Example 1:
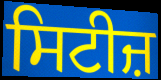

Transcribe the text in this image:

ਸਿਟੀਜ਼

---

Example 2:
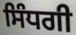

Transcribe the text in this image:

ਸਿੰਧਗੀ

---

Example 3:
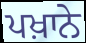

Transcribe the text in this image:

ਪਖ਼ਾਨੇ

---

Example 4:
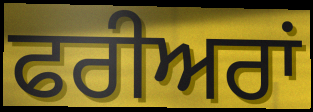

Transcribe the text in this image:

ਫਰੀਅਰਾਂ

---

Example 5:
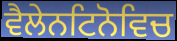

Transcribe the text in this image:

ਵੈਲੇਨਟਿਨੋਵਿਚ